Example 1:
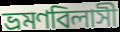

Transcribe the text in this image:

ভ্রমণবিলাসী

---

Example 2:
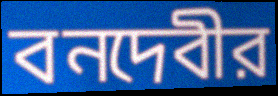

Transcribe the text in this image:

বনদেবীর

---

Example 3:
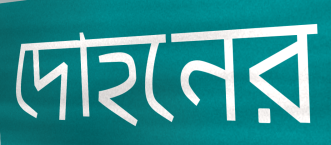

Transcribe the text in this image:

দোহনের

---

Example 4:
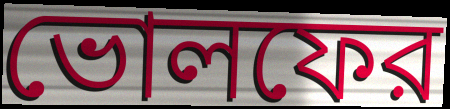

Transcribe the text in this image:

ভোলফের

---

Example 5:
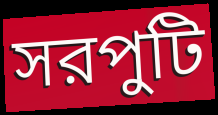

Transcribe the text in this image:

সরপুটি